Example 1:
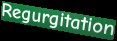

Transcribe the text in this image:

Regurgitation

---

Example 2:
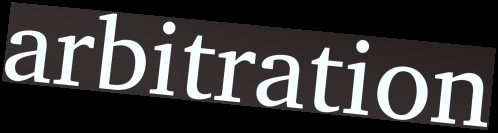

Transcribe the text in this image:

arbitration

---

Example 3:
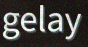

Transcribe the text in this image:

gelay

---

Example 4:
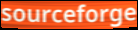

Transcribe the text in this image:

sourceforge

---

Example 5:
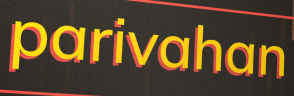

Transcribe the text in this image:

parivahan